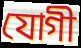
যোগী